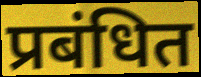
प्रबंधित